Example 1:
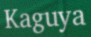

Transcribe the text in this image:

Kaguya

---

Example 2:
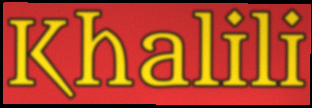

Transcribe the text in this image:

Khalili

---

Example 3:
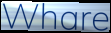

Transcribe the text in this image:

Whare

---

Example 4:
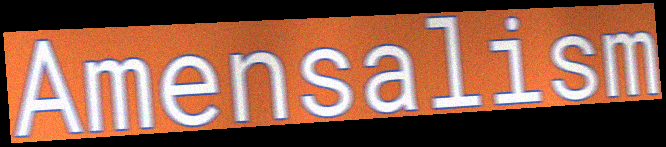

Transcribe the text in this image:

Amensalism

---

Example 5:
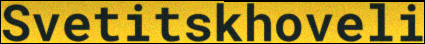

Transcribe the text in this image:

Svetitskhoveli